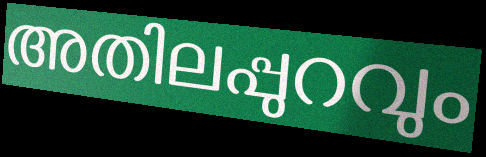
അതിലപ്പുറവും